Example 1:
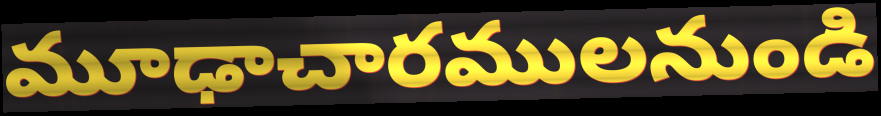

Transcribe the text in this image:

మూఢాచారములనుండి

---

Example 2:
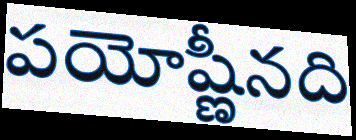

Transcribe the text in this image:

పయోష్ణీనది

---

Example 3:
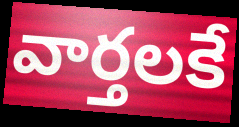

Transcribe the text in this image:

వార్తలకే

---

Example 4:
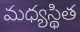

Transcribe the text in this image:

మధ్యస్థిత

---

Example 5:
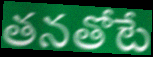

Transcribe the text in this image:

తనతోటే